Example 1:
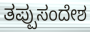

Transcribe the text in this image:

ತಪ್ಪುಸಂದೇಶ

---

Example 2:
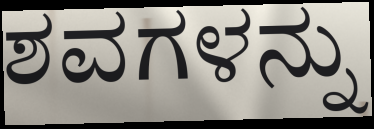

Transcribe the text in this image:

ಶವಗಳನ್ನು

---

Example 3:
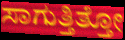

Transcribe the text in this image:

ಸಾಗುತ್ತಿತ್ತೋ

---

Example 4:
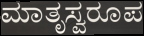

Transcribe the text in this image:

ಮಾತೃಸ್ವರೂಪ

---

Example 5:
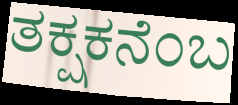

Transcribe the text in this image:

ತಕ್ಷಕನೆಂಬ